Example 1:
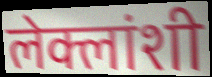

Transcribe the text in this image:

लेक्लांशी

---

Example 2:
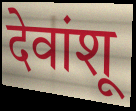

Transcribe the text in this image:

देवांशू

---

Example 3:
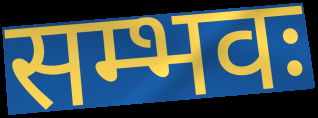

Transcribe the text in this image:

सम्भवः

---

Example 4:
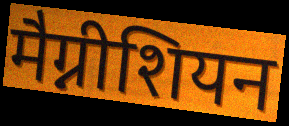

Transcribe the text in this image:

मैग्नीशियन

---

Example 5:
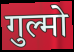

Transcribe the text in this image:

गुल्मो